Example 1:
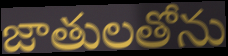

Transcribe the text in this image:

జాతులతోను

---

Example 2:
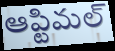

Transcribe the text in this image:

ఆప్టిమల్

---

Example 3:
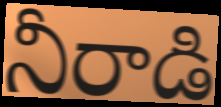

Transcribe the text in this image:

నీరాడి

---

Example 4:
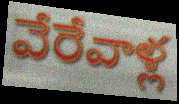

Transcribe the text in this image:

వేరేవాళ్ల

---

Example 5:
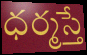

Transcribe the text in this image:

ధర్మస్తే